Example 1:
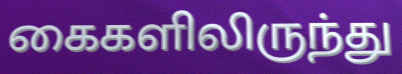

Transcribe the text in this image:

கைகளிலிருந்து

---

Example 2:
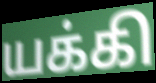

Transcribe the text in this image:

யக்கி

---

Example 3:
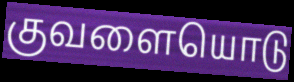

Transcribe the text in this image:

குவளையொடு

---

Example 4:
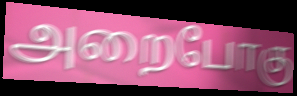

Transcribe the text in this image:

அறைபோகு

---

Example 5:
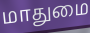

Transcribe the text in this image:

மாதுமை